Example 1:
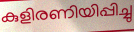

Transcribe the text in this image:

കുളിരണിയിപ്പിച്ചു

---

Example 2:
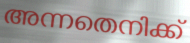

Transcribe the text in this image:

അന്നതെനിക്ക്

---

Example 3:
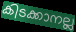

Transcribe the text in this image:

കിടക്കാനല്ല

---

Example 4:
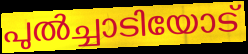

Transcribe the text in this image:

പുൽച്ചാടിയോട്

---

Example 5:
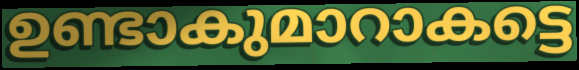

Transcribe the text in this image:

ഉണ്ടാകുമാറാകട്ടെ